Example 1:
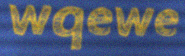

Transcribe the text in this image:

wqewe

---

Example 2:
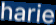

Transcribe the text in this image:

harie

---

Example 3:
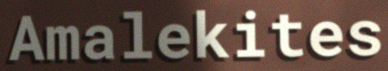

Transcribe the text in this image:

Amalekites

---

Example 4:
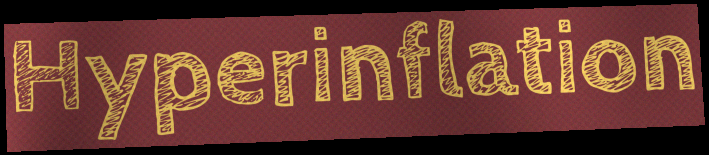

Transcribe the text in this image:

Hyperinflation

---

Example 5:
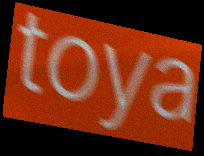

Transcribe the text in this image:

toya